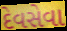
દેવસેવા